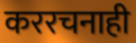
कररचनाही